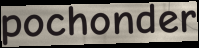
pochonder